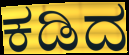
ಕಡಿದ